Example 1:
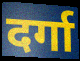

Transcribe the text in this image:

दर्गा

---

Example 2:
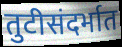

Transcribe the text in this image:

तुटीसंदर्भात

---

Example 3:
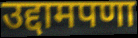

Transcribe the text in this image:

उद्दामपणा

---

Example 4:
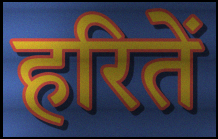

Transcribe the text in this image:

हरितें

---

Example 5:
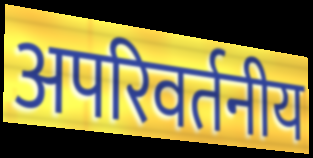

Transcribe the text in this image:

अपरिवर्तनीय